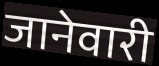
जानेवारी